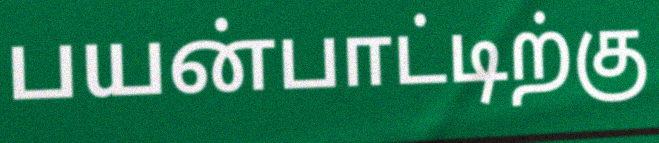
பயன்பாட்டிற்கு